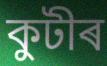
কুটীৰ